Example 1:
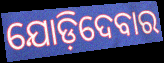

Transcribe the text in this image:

ଯୋଡ଼ିଦେବାର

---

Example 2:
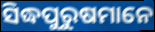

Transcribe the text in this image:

ସିଦ୍ଧପୁରୁଷମାନେ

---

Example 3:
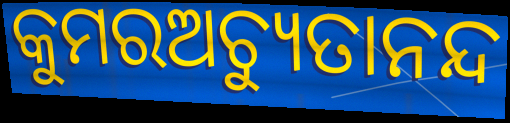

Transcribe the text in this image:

କୁମରଅଚ୍ୟୁତାନନ୍ଦ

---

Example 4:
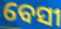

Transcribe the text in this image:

ବେସୀ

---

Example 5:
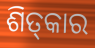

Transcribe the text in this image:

ଶିତ୍‍କାର